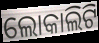
ଲୋକାଲିଟି